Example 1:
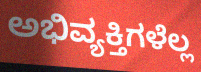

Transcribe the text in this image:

ಅಭಿವ್ಯಕ್ತಿಗಳೆಲ್ಲ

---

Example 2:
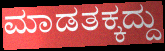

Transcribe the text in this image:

ಮಾಡತಕ್ಕದ್ದು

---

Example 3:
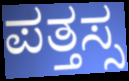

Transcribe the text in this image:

ಪತ್ತಸ್ಸ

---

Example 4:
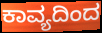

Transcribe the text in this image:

ಕಾವ್ಯದಿಂದ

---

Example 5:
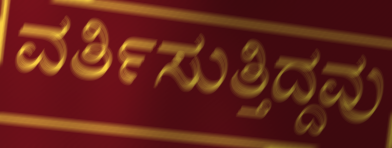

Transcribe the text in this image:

ವರ್ತಿಸುತ್ತಿದ್ದವು